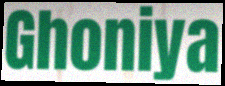
Ghoniya